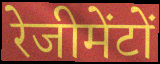
रेजीमेंटों